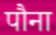
पौना